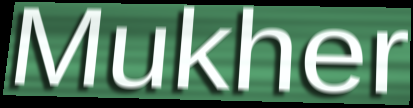
Mukher